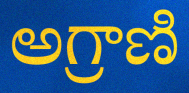
అగ్రాణి